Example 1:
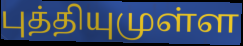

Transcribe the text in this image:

புத்தியுமுள்ள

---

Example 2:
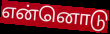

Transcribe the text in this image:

என்னொடு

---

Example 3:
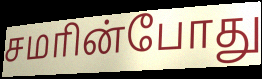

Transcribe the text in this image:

சமரின்போது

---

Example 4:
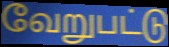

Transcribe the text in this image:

வேறுபட்டு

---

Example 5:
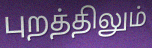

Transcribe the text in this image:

புறத்திலும்